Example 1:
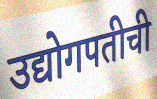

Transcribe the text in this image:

उद्योगपतीची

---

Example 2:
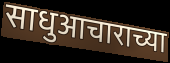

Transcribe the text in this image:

साधुआचाराच्या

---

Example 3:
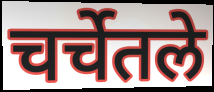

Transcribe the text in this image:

चर्चेतले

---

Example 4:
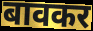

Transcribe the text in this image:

बावकर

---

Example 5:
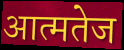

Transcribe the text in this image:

आत्मतेज